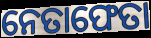
ନେତାଫେତା